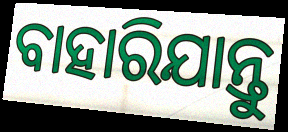
ବାହାରିଯାନ୍ତୁ